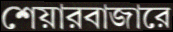
শেয়ারবাজারে